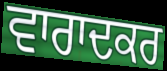
ਵਾਰਾਦਕਰ